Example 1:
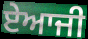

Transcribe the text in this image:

ਏਆਜੀ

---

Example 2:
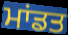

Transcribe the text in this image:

ਮਾਂਡਤ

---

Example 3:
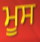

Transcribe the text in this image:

ਮੂਸ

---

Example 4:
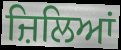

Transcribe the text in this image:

ਜ਼ਿਲਿਆਂ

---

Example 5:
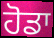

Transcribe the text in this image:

ਹੋਡਾ